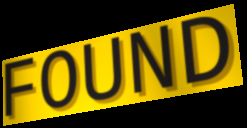
FOUND